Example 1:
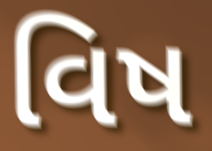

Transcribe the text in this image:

વિષ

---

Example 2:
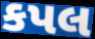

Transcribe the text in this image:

કપલ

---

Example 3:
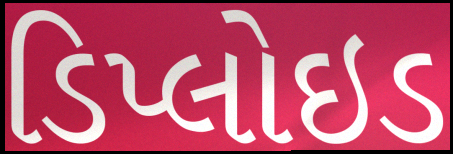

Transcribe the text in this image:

ડિપ્લોઇડ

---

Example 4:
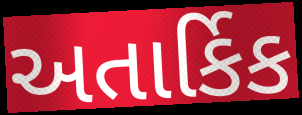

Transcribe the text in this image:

અતાર્કિક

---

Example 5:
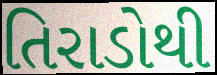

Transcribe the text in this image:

તિરાડોથી